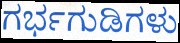
ಗರ್ಭಗುಡಿಗಳು